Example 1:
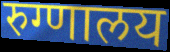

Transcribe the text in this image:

रुग्णालय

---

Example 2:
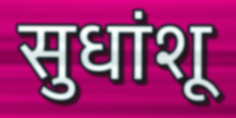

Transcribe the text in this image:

सुधांशू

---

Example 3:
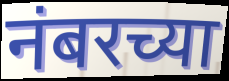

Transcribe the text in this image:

नंबरच्या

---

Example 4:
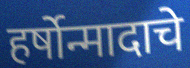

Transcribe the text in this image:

हर्षोन्मादाचे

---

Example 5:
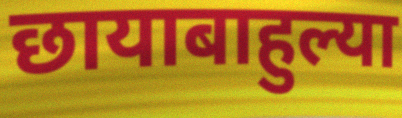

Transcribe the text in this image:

छायाबाहुल्या